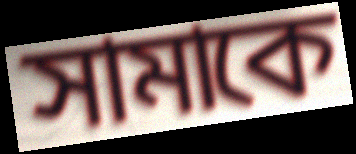
সামাকে